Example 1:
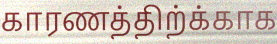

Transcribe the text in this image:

காரணத்திற்க்காக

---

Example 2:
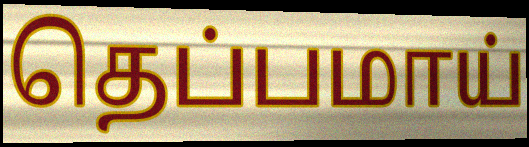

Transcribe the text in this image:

தெப்பமாய்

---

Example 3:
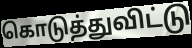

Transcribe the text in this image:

கொடுத்துவிட்டு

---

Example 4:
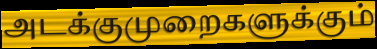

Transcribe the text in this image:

அடக்குமுறைகளுக்கும்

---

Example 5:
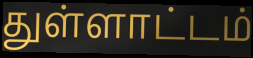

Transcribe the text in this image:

துள்ளாட்டம்